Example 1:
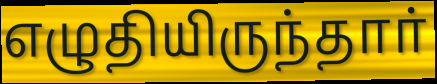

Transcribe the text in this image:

எழுதியிருந்தார்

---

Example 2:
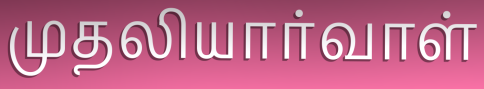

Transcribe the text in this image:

முதலியார்வாள்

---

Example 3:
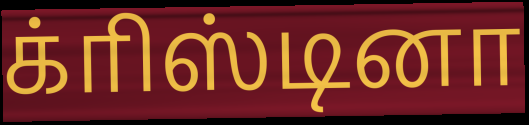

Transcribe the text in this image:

க்ரிஸ்டினா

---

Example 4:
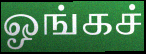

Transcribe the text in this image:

ஓங்கச்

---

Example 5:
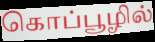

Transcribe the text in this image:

கொப்பூழில்